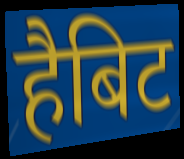
हैबिट